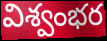
విశ్వంభర